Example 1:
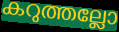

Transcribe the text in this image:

കറുത്തല്ലോ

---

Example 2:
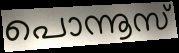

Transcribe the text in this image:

പൊന്നൂസ്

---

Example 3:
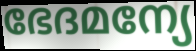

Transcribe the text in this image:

ഭേദമന്യേ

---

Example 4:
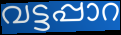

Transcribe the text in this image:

വട്ടപ്പാറ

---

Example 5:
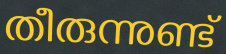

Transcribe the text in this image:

തീരുന്നുണ്ട്